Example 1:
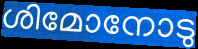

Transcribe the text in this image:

ശിമോനോടു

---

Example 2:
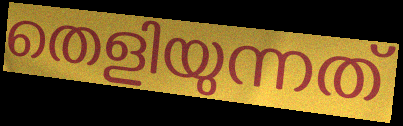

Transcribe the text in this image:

തെളിയുന്നത്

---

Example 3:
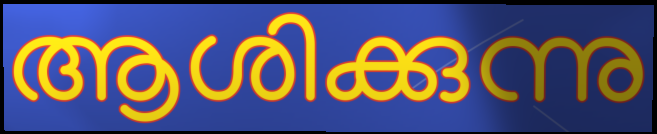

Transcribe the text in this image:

ആശിക്കുന്നു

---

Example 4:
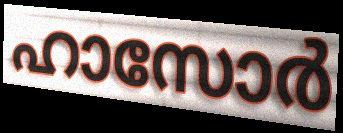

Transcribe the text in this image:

ഹാസോർ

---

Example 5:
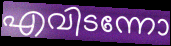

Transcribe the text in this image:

എവിടന്നോ